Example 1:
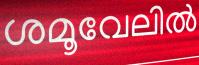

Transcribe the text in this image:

ശമൂവേലിൽ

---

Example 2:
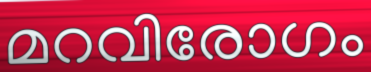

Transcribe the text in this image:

മറവിരോഗം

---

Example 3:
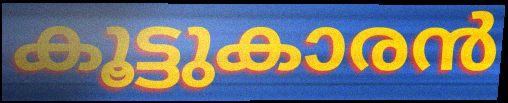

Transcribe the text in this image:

കൂട്ടുകാരൻ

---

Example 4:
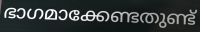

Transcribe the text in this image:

ഭാഗമാക്കേണ്ടതുണ്ട്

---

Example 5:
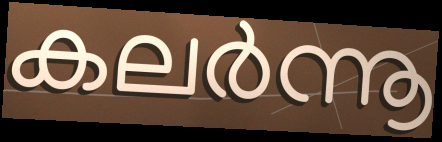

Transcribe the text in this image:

കലർന്നൂ